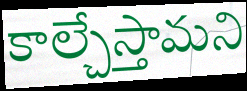
కాల్చేస్తామని